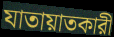
যাতায়াতকারী